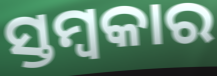
ସ୍ତମ୍ବକାର